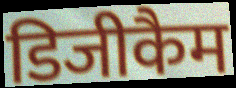
डिजीकैम